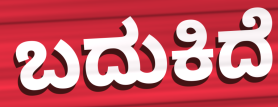
ಬದುಕಿದೆ